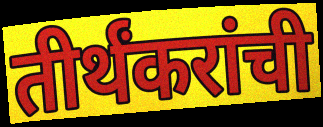
तीर्थंकरांची